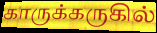
காருக்கருகில்